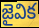
జైవిక